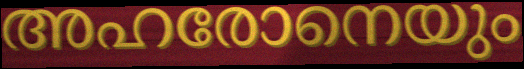
അഹരോനെയും